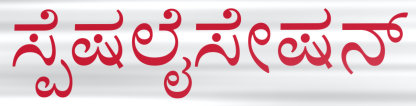
ಸ್ಪೆಷಲೈಸೇಷನ್